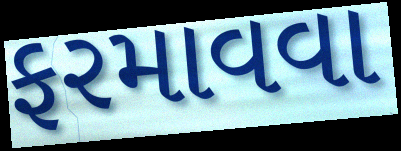
ફરમાવવા